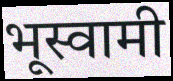
भूस्वामी